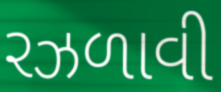
રઝળાવી